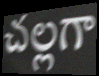
చల్లగా